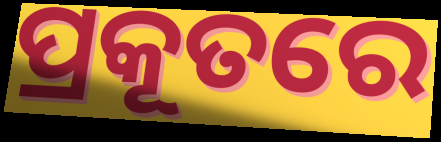
ପ୍ରକୂତରେ